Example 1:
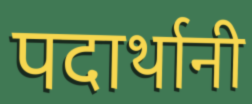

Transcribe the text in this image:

पदार्थानी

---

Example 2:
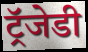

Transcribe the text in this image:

ट्रॅजेडी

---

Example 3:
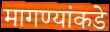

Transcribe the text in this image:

मागण्यांकडे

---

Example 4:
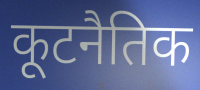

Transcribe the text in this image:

कूटनैतिक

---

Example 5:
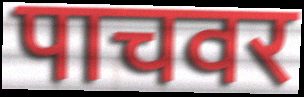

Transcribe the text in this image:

पाचवर